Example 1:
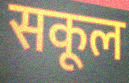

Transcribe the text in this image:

सकूल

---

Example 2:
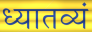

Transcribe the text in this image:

ध्यातव्यं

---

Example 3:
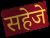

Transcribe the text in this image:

सहेजे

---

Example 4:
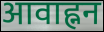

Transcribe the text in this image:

आवाह्नन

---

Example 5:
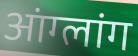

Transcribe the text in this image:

आंग्लांग